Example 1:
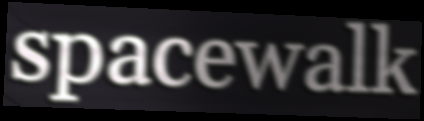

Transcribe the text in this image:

spacewalk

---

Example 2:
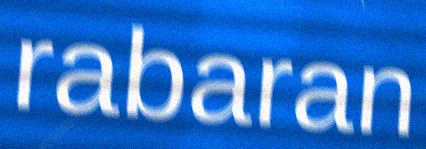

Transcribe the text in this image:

rabaran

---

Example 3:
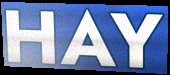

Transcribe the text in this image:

HAY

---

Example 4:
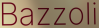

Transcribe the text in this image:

Bazzoli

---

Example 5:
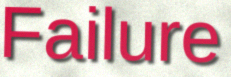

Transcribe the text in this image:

Failure